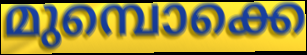
മുമ്പൊക്കെ